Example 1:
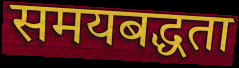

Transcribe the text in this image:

समयबद्धता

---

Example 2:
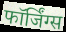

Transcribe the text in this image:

फॉर्जिंग्स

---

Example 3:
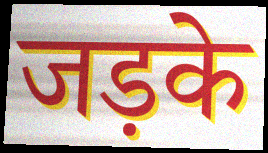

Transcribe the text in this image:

जड़के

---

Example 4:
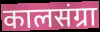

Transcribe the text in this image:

कालसंग्रा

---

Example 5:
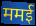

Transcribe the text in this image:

ममई